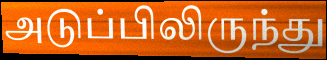
அடுப்பிலிருந்து